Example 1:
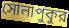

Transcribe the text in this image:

সোনাপুকুর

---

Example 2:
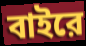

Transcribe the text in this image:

বাইরে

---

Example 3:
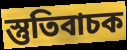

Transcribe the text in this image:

স্তুতিবাচক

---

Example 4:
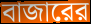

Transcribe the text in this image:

বাজারের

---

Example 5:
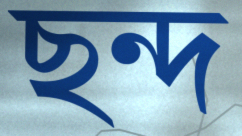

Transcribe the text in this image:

ছন্দ